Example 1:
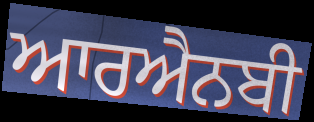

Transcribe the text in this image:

ਆਰਐਨਬੀ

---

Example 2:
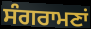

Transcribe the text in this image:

ਸੰਗਰਾਮਣਾਂ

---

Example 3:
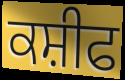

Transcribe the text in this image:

ਕਸ਼ੀਫ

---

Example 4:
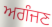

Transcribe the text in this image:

ਅਗੰਜਣ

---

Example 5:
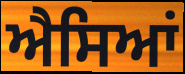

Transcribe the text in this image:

ਐਸਿਆਂ